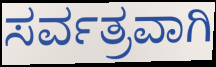
ಸರ್ವತ್ರವಾಗಿ